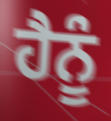
ਹੈਨੂੰ